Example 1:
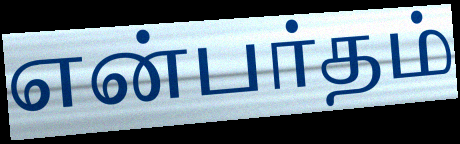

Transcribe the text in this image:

என்பர்தம்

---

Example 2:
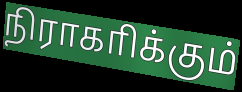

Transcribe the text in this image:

நிராகரிக்கும்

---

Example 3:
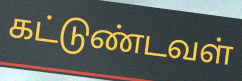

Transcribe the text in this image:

கட்டுண்டவள்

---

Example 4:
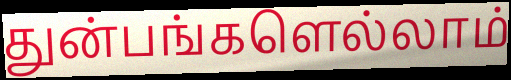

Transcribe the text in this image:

துன்பங்களெல்லாம்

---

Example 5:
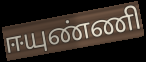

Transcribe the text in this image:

ஈயுண்ணி